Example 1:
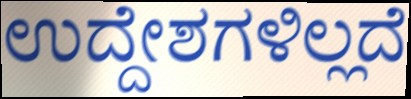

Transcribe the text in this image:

ಉದ್ದೇಶಗಳಿಲ್ಲದೆ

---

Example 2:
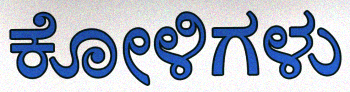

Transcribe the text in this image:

ಕೋಳಿಗಳು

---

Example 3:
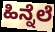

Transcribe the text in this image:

ಹಿನ್ನೆಲೆ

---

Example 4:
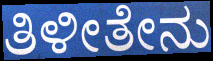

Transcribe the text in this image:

ತಿಳೀತೇನು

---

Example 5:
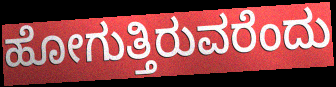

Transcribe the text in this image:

ಹೋಗುತ್ತಿರುವರೆಂದು